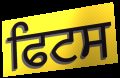
ਫਿਟਸ